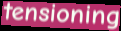
tensioning